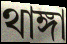
থাঙ্গা